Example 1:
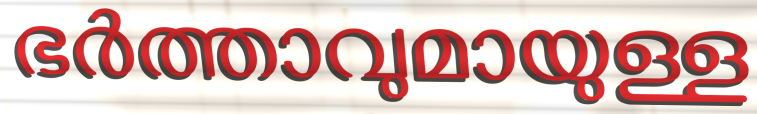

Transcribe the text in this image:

ഭർത്താവുമായുള്ള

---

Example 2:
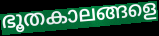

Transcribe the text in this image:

ഭൂതകാലങ്ങളെ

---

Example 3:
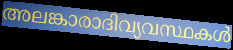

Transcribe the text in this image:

അലങ്കാരാദിവ്യവസ്ഥകൾ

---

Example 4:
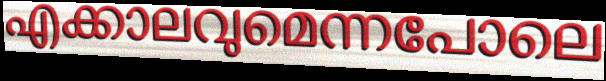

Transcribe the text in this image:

എക്കാലവുമെന്നപോലെ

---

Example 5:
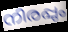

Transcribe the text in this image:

നിരപ്പും